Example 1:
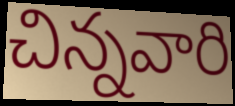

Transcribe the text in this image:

చిన్నవారి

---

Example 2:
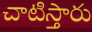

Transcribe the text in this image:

చాటిస్తారు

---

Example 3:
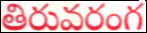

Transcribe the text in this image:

తిరువరంగ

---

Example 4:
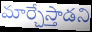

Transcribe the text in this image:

మార్చేస్తాడని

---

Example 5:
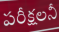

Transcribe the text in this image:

పరీక్షలనీ